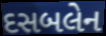
દસબલેન